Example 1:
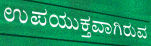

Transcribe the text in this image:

ಉಪಯುಕ್ತವಾಗಿರುವ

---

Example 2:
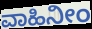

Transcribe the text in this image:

ವಾಹಿನೀಂ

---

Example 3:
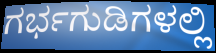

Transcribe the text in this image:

ಗರ್ಭಗುಡಿಗಳಲ್ಲಿ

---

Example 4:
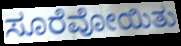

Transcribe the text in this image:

ಸೂರೆವೋಯಿತು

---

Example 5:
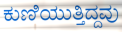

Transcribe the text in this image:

ಕುಣಿಯುತ್ತಿದ್ದವು